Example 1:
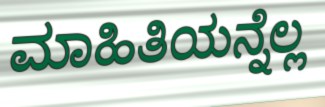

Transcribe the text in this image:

ಮಾಹಿತಿಯನ್ನೆಲ್ಲ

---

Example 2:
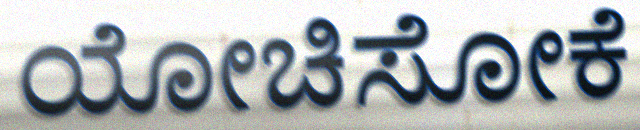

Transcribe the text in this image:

ಯೋಚಿಸೋಕೆ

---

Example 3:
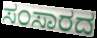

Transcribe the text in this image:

ಸಂಸಾರದ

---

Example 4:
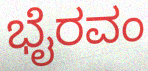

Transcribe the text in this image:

ಭೈರವಂ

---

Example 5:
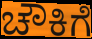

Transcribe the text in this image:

ಚೌಕಿಗೆ